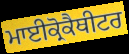
ਮਾਈਕ੍ਰੋਕੈਥੀਟਰ